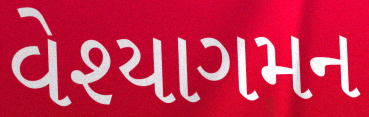
વેશ્યાગમન